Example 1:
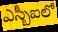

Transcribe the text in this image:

ఎస్బీఐలో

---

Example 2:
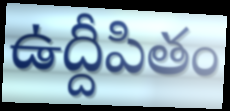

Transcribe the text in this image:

ఉద్దీపితం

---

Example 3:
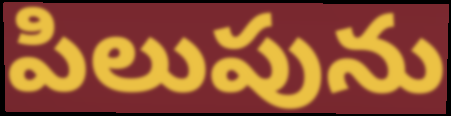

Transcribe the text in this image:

పిలుపును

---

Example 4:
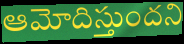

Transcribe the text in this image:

ఆమోదిస్తుందని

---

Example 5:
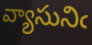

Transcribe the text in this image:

వ్యాసునిఁ